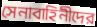
সেনাবাহিনীদের